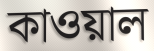
কাওয়াল